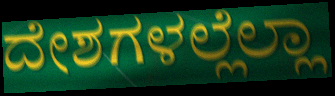
ದೇಶಗಳಲ್ಲೆಲ್ಲಾ